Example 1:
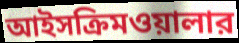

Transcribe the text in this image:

আইসক্রিমওয়ালার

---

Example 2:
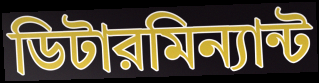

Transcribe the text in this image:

ডিটারমিন্যান্ট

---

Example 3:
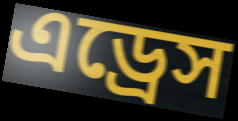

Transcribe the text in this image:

এড্রেস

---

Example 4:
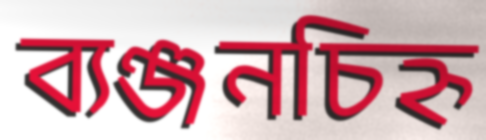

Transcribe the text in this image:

ব্যঞ্জনচিহ্ন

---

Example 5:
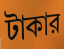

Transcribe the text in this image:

টাকার